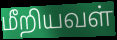
மீறியவள்